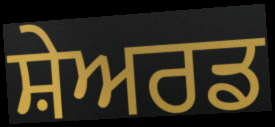
ਸ਼ੇਅਰਡ